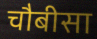
चौबीसा